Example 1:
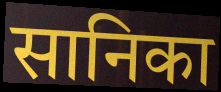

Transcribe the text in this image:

सानिका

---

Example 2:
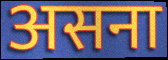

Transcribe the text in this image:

असना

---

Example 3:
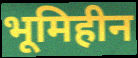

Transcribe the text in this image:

भूमिहीन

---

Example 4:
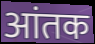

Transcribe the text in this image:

आंतक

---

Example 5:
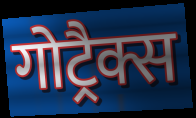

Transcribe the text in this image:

गोट्रैक्स